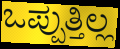
ಒಪ್ಪುತ್ತಿಲ್ಲ